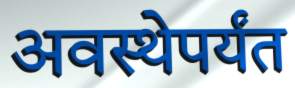
अवस्थेपर्यंत